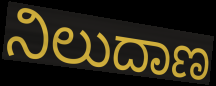
ನಿಲುದಾಣ